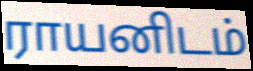
ராயனிடம்